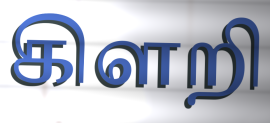
கிளறி